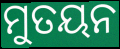
ମୁତୟନ